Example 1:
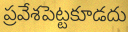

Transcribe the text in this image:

ప్రవేశపెట్టకూడదు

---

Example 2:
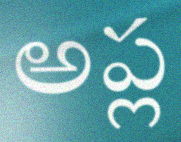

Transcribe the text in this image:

అప్ల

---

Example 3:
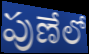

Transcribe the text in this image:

పుణేలో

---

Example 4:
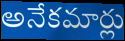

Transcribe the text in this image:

అనేకమార్లు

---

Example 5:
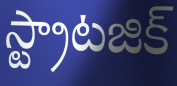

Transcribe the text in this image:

స్ట్రాటజిక్